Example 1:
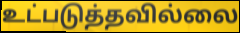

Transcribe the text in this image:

உட்படுத்தவில்லை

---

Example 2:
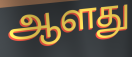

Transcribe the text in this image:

ஆளது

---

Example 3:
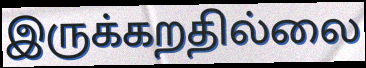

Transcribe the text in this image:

இருக்கறதில்லை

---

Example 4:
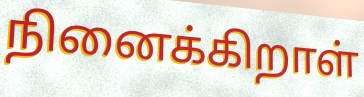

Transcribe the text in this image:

நினைக்கிறாள்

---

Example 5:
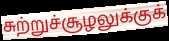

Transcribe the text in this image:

சுற்றுச்சூழலுக்குக்